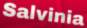
Salvinia